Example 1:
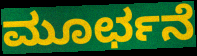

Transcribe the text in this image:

ಮೂರ್ಛನೆ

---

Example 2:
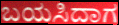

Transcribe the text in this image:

ಬಯಸಿದಾಗ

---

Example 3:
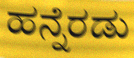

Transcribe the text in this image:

ಹನ್ನೆರಡು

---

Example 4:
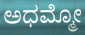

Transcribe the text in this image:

ಅಧಮ್ಮೋ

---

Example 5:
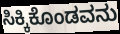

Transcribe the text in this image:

ಸಿಕ್ಕಿಕೊಂಡವನು